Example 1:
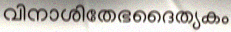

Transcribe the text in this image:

വിനാശിതേഭദൈത്യകം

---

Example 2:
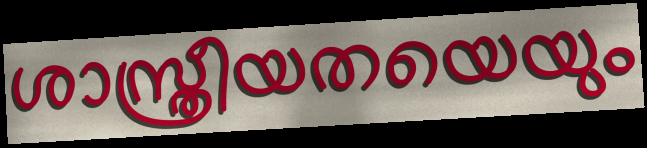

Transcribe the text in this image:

ശാസ്ത്രീയതയെയും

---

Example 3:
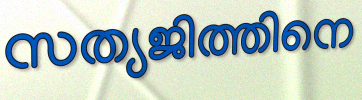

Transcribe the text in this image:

സത്യജിത്തിനെ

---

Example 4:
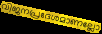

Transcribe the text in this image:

വിജനപ്രദേശമാണല്ലോ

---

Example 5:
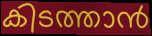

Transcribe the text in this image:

കിടത്താൻ